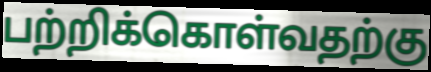
பற்றிக்கொள்வதற்கு